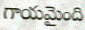
గాయమైంది